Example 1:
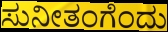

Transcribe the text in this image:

ಸುನೀತಂಗೆಂದು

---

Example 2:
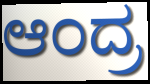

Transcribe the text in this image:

ಆಂದ್ರ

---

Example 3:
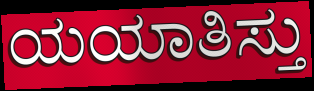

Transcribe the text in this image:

ಯಯಾತಿಸ್ತು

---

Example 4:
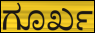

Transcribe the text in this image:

ಗೂರ್ಖ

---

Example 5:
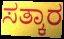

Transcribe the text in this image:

ಸತ್ಕಾರ